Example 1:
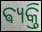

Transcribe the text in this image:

ଵ୍ଯକ୍ତି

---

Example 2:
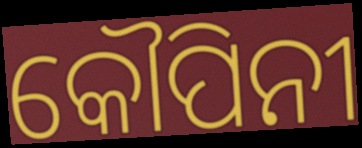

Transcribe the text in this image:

କୌପିନୀ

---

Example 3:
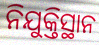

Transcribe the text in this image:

ନିଯୁକ୍ତିସ୍ଥାନ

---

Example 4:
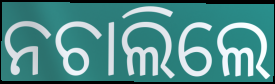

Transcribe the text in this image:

ନଚାଲିଲେ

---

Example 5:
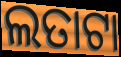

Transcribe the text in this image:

ଲତାଟା